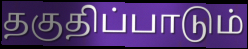
தகுதிப்பாடும்